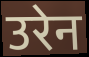
उरेन